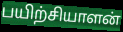
பயிற்சியாளன்